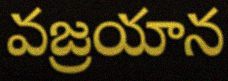
వజ్రయాన